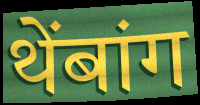
थेंबांग